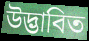
উদ্ভাবিত